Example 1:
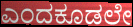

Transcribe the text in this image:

ಎಂದಕೂಡಲೇ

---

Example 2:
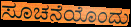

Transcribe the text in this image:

ಸೂಚನೆಯೊಂದು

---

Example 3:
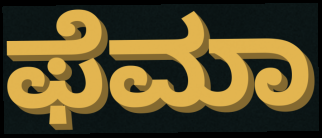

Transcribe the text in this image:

ಫೆಮಾ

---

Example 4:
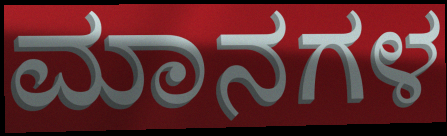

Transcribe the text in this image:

ಮಾನಗಳ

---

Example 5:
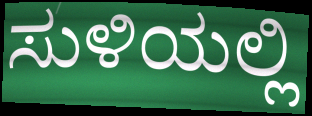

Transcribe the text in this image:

ಸುಳಿಯಲ್ಲಿ